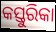
କସ୍ତୁରିକା